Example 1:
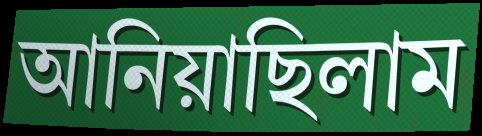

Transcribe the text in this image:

আনিয়াছিলাম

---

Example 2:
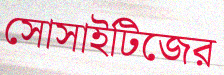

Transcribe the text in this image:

সোসাইটিজের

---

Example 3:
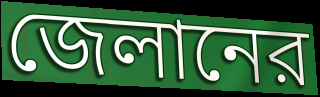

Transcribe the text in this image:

জেলানের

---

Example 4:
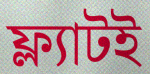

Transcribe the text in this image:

ফ্ল্যাটই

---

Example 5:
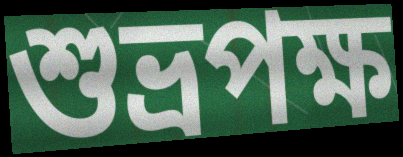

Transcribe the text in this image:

শুভ্রপক্ষ